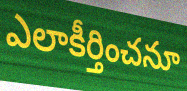
ఎలాకీర్తించనూ